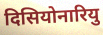
दिसियोनारियु